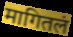
मागितलं